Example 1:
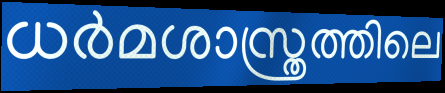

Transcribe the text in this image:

ധർമശാസ്ത്രത്തിലെ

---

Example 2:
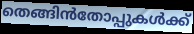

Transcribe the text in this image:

തെങ്ങിൻതോപ്പുകൾക്ക്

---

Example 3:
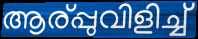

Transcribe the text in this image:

ആര്പ്പുവിളിച്ച്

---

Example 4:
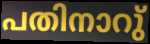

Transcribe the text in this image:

പതിനാറു്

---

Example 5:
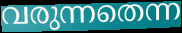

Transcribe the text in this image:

വരുന്നതെന്ന